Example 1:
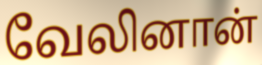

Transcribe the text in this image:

வேலினான்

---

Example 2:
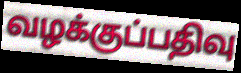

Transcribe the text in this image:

வழக்குப்பதிவு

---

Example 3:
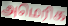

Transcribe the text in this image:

அமெரிக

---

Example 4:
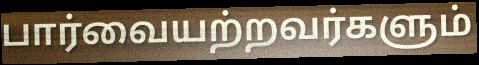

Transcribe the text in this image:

பார்வையற்றவர்களும்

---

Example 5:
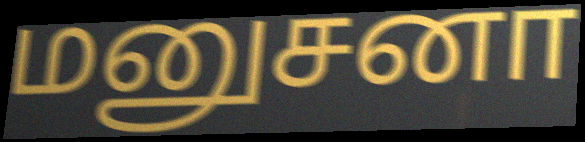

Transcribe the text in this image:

மனுசனா